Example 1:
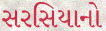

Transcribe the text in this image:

સરસિયાનો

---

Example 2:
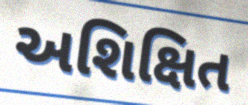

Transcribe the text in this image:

અશિક્ષિત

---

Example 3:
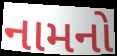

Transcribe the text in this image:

નામનો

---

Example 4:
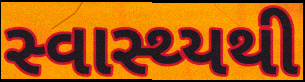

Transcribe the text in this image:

સ્વાસ્થ્યથી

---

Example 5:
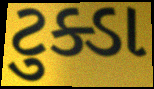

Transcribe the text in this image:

ટુક્ડા